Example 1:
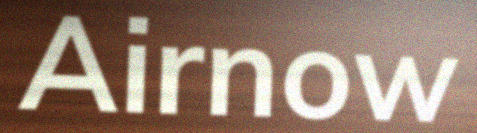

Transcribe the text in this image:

Airnow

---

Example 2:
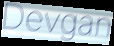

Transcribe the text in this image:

Devgan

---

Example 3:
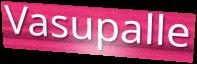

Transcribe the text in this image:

Vasupalle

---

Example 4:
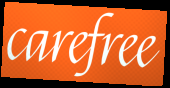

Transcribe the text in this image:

carefree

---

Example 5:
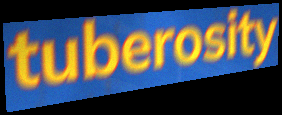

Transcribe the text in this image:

tuberosity